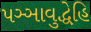
પઞ્ઞાવુદ્ધેહિ